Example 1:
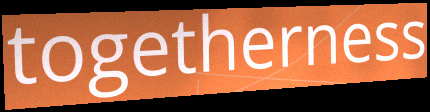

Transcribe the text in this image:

togetherness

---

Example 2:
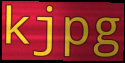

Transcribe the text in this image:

kjpg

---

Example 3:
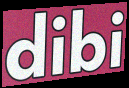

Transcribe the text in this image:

dibi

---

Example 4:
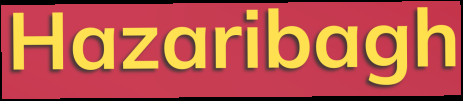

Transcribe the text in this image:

Hazaribagh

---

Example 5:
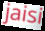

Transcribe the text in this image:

jaisi